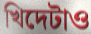
খিদেটাও